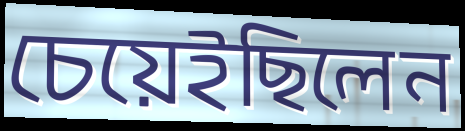
চেয়েইছিলেন